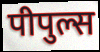
पीपुल्स